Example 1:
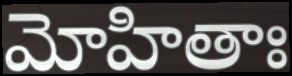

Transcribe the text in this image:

మోహితాః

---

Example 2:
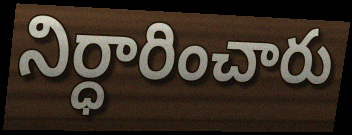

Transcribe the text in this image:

నిర్ధారించారు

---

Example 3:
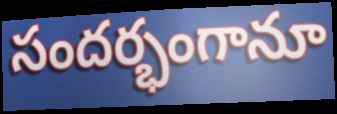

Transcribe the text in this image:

సందర్భంగానూ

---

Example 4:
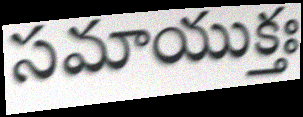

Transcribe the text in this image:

సమాయుక్తః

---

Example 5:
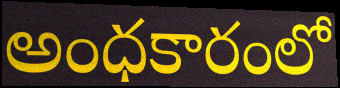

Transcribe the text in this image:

అంధకారంలో